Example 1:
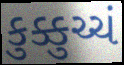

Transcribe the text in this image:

કુક્કુચ્ચં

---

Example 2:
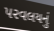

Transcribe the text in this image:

પરવલયનું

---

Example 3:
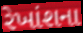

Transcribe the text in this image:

રેખાંશના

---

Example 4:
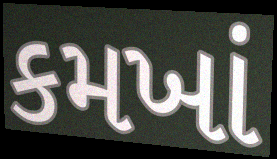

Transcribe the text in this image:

કમખાં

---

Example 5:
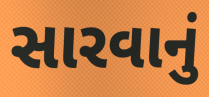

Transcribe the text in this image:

સારવાનું